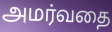
அமர்வதை